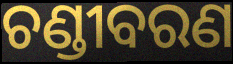
ଚଣ୍ଡୀବରଣ